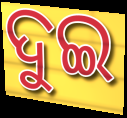
ଦୁଇ